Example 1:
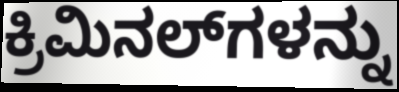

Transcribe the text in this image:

ಕ್ರಿಮಿನಲ್‍ಗಳನ್ನು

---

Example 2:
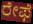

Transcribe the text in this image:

ರೇಫೆ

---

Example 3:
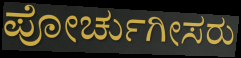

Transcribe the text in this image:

ಪೋರ್ಚುಗೀಸರು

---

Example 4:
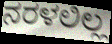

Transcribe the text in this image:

ನರಳಲಿಲ್ಲ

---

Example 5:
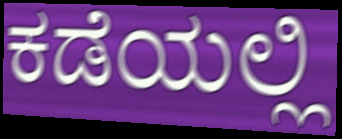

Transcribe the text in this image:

ಕಡೆಯಲ್ಲಿ